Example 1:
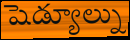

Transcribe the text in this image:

షెడ్యూల్ను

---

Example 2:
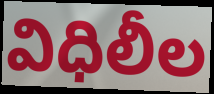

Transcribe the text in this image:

విధిలీల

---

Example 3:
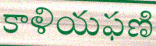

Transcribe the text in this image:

కాళియఫణి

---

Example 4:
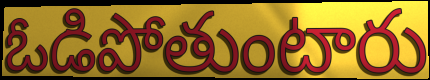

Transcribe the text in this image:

ఓడిపోతుంటారు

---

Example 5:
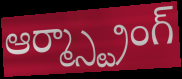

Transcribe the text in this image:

ఆర్మ్స్ట్రాంగ్